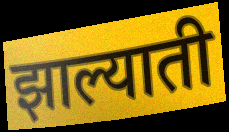
झाल्याती